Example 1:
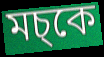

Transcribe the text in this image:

মচ্কে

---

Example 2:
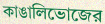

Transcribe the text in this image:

কাঙালিভোজের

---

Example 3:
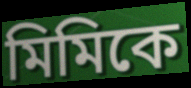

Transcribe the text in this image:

মিমিকে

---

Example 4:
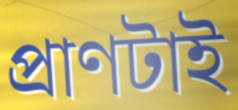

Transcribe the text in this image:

প্রাণটাই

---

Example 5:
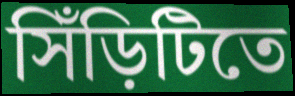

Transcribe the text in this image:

সিঁড়িটিতে